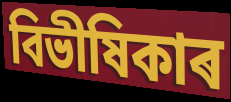
বিভীষিকাৰ